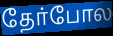
தேர்போல